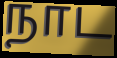
நாட